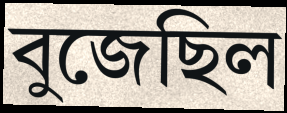
বুজেছিল